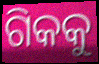
ଗିକକୁ